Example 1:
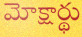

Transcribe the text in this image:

మోక్షార్థు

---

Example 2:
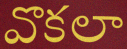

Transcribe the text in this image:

వొకలా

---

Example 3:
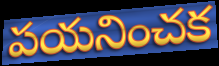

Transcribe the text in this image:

పయనించక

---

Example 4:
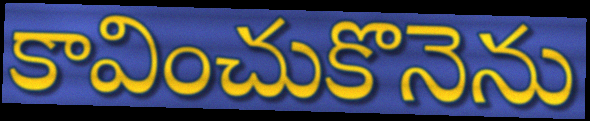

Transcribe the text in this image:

కావించుకొనెను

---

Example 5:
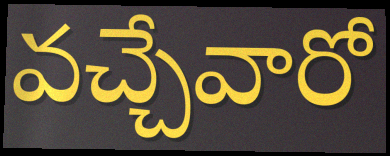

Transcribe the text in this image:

వచ్చేవారో